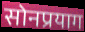
सोनप्रयाग